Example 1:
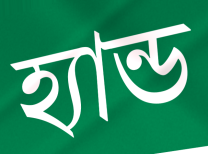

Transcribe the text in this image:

হ্যান্ড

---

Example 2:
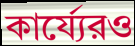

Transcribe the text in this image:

কার্য্যেরও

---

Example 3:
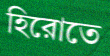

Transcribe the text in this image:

হিরোতে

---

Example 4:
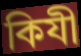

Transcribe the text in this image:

কিযী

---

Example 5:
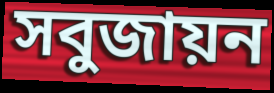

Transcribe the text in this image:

সবুজায়ন